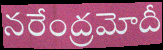
నరేంద్రమోదీ